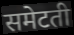
समेटती